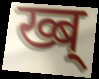
ख्ब्